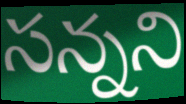
సన్నని